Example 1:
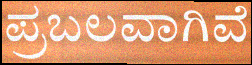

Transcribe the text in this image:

ಪ್ರಬಲವಾಗಿವೆ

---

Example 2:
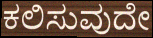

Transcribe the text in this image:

ಕಲಿಸುವುದೇ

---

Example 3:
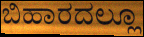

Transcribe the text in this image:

ಬಿಹಾರದಲ್ಲೂ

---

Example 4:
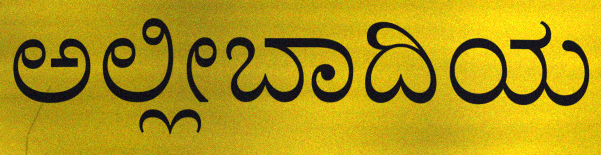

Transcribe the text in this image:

ಅಲ್ಲೀಬಾದಿಯ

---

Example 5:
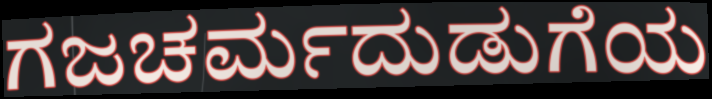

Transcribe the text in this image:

ಗಜಚರ್ಮದುಡುಗೆಯ